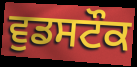
ਵੁਡਸਟੌਕ